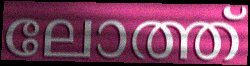
ലോത്ത്